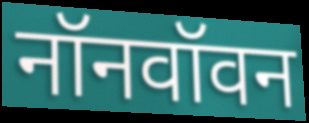
नॉनवॉवन